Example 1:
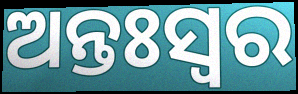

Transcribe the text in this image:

ଅନ୍ତଃସ୍ଵର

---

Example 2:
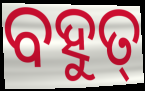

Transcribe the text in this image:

ବହୁତ୍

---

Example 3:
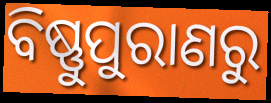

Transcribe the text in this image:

ବିଷ୍ଣୁପୁରାଣରୁ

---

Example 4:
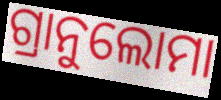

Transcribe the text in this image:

ଗ୍ରାନୁଲୋମା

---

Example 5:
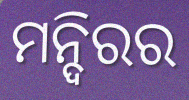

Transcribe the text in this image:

ମନ୍ଦିରର